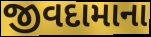
જીવદામાના